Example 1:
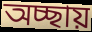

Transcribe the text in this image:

অচ্ছায়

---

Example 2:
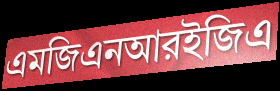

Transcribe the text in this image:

এমজিএনআরইজিএ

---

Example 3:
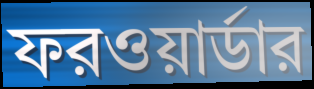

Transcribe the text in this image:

ফরওয়ার্ডার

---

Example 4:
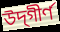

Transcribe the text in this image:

উদ্‌গীর্ণ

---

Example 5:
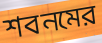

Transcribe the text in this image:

শবনমের